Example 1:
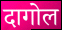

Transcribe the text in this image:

दागोल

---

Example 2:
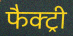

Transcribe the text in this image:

फैक्ट्री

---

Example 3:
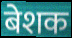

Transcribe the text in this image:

बेशक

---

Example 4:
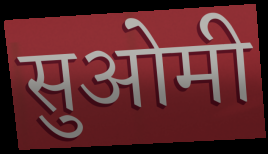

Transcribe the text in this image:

सुओमी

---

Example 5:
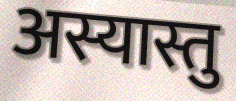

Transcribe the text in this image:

अस्यास्तु